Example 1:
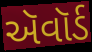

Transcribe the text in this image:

ઍવૉર્ડ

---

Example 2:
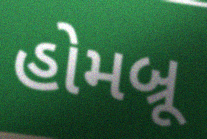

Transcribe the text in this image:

હોમબ્રૂ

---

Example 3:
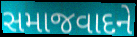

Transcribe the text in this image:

સમાજવાદને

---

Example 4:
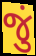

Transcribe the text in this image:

જું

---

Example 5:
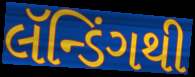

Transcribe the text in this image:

લૅન્ડિંગથી